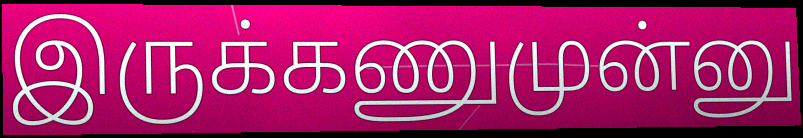
இருக்கணுமுன்னு